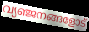
വ്യഞ്ജനങ്ങളോട്